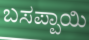
ಬಸಪ್ಪಾಯಿ